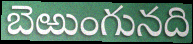
బెఱుంగునది